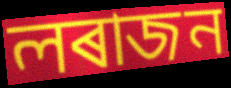
লৰাজন